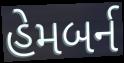
હેમબર્ન